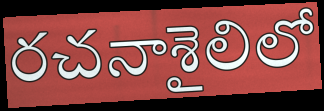
రచనాశైలిలో